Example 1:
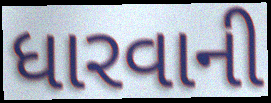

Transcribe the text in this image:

ધારવાની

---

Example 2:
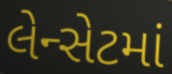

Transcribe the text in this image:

લેન્સેટમાં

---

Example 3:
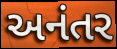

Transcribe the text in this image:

અનંતર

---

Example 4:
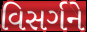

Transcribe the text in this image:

વિસર્ગને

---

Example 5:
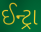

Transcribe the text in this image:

ઈન્ટ્રા